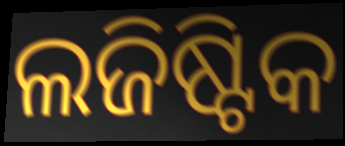
ଲଜିଷ୍ଟିକ